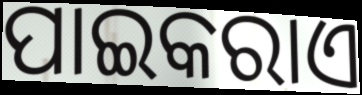
ପାଇକରାଏ